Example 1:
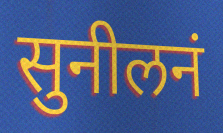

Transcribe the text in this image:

सुनीलनं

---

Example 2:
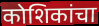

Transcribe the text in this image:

कोशिकांचा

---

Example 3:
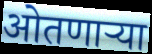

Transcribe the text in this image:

ओतणाऱ्या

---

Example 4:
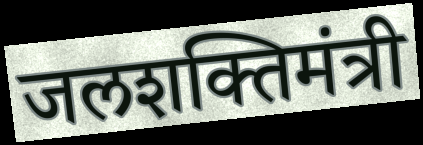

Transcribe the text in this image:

जलशक्तिमंत्री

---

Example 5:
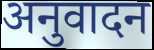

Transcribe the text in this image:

अनुवादन